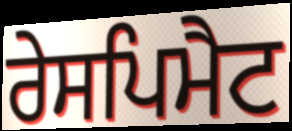
ਰੇਸਪਿਮੈਟ